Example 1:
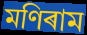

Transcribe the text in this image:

মণিৰাম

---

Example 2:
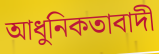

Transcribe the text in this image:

আধুনিকতাবাদী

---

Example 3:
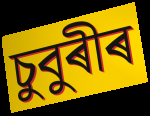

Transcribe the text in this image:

চুবুৰীৰ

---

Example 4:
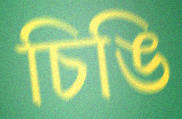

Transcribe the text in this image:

চিঙি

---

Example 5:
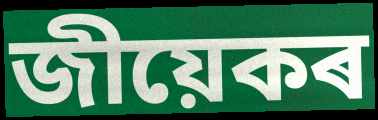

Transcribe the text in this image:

জীয়েকৰ